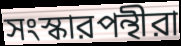
সংস্কারপন্থীরা